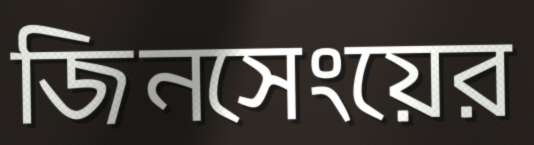
জিনসেংয়ের